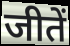
जीतें